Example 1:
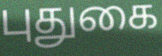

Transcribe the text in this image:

புதுகை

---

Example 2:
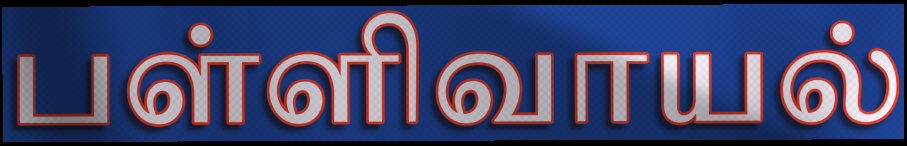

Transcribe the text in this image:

பள்ளிவாயல்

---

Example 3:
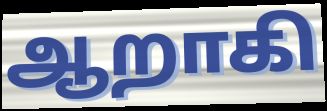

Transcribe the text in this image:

ஆறாகி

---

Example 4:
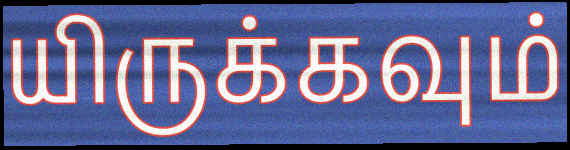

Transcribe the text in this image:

யிருக்கவும்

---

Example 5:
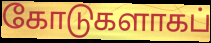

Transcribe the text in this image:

கோடுகளாகப்